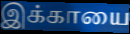
இக்காயை